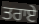
ਤਰਾਏ